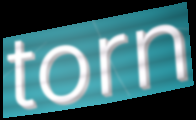
torn